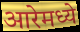
आरेमध्ये